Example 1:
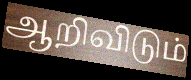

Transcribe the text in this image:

ஆறிவிடும்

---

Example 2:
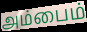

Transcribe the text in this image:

அம்பைம்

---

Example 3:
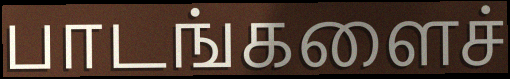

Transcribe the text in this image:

பாடங்களைச்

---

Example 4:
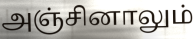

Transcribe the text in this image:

அஞ்சினாலும்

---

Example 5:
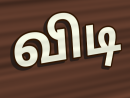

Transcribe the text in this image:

விடி